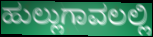
ಹುಲ್ಲುಗಾವಲಲ್ಲಿ